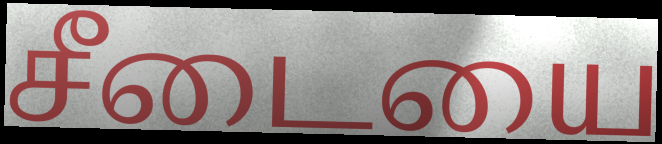
சீடையை